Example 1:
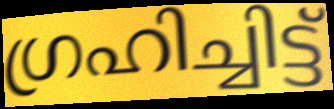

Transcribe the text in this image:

ഗ്രഹിച്ചിട്ട്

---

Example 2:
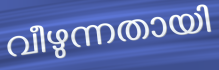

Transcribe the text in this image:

വീഴുന്നതായി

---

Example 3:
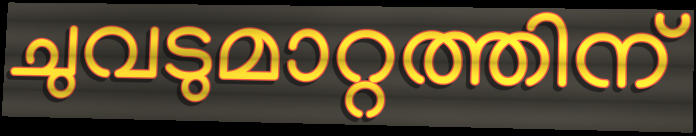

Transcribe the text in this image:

ചുവടുമാറ്റത്തിന്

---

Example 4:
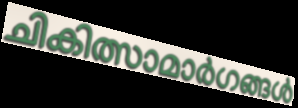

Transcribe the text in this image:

ചികിത്സാമാർഗങ്ങൾ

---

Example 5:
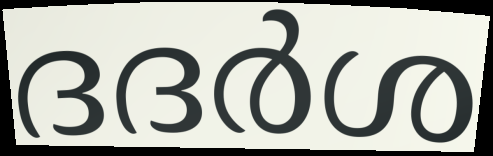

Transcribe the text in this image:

ദദർശ